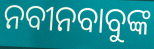
ନବୀନବାବୁଙ୍କ